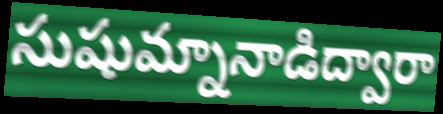
సుషుమ్నానాడిద్వారా